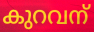
കുറവന്